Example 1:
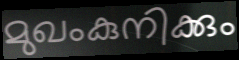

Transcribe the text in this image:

മുഖംകുനിക്കും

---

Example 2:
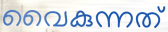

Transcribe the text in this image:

വൈകുന്നത്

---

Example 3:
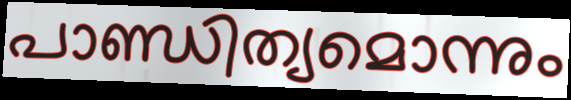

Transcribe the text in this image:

പാണ്ഡിത്യമൊന്നും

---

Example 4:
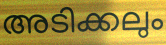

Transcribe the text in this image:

അടിക്കലും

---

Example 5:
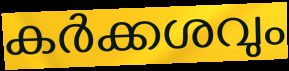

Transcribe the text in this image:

കർക്കശവും